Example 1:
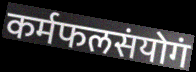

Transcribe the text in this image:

कर्मफलसंयोगं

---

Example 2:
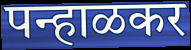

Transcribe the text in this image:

पन्हाळकर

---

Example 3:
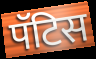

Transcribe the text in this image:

पॅटिस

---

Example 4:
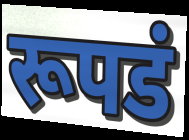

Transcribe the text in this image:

रूपडं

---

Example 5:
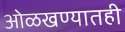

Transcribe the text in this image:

ओळखण्यातही